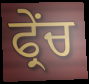
ਫ੍ਰੇੰਚ